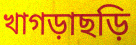
খাগড়াছড়ি